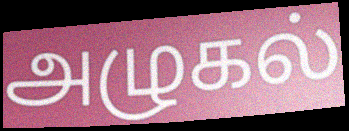
அழுகல்